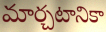
మార్చటానికా